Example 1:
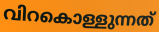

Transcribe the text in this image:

വിറകൊള്ളുന്നത്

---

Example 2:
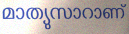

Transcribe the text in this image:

മാത്യുസാറാണ്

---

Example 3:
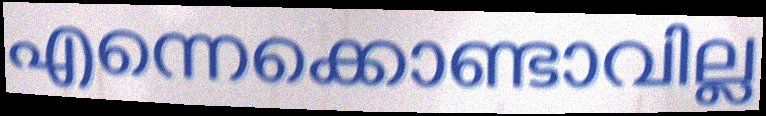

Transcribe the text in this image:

എന്നെക്കൊണ്ടാവില്ല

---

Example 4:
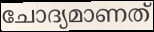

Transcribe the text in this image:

ചോദ്യമാണത്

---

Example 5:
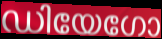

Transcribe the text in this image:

ഡിയേഗോ